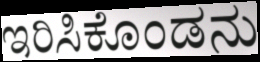
ಇರಿಸಿಕೊಂಡನು